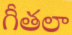
గీతలా